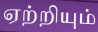
ஏற்றியும்